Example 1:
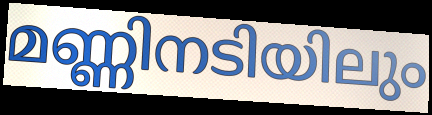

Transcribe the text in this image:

മണ്ണിനടിയിലും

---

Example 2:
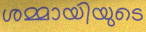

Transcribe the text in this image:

ശമ്മായിയുടെ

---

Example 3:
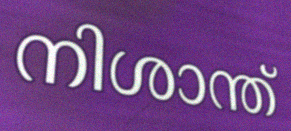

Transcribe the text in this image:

നിശാന്ത്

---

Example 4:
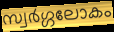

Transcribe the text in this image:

സ്വർഗ്ഗലോകം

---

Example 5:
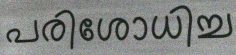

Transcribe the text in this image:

പരിശോധിച്ച